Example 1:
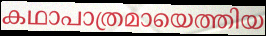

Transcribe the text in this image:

കഥാപാത്രമായെത്തിയ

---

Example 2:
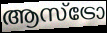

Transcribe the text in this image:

ആസ്ട്രോ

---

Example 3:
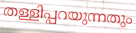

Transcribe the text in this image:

തള്ളിപ്പറയുന്നതും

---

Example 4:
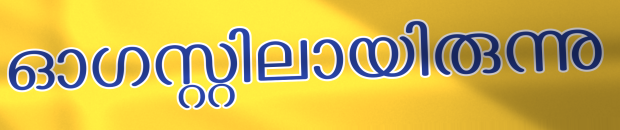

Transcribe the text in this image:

ഓഗസ്റ്റിലായിരുന്നു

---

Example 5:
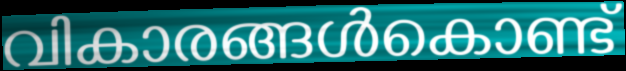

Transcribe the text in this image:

വികാരങ്ങൾകൊണ്ട്